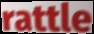
rattle